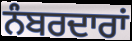
ਨੰਬਰਦਾਰਾਂ